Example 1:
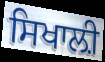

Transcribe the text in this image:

ਸਿਖਾਲ਼ੀ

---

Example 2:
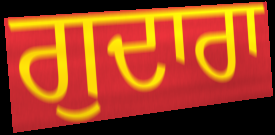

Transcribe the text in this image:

ਗੁਦਾਰਾ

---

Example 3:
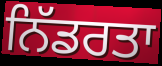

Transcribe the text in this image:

ਨਿੱਡਰਤਾ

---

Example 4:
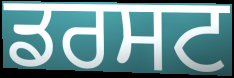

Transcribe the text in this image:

ਡਰਸਟ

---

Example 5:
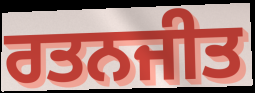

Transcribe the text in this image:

ਰਤਨਜੀਤ